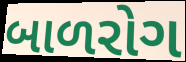
બાળરોગ